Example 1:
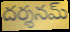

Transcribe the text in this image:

దర్శనమ్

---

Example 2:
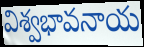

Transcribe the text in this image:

విశ్వభావనాయ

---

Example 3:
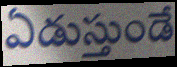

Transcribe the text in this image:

ఏడుస్తుండే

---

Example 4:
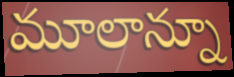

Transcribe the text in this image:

మూలాన్నూ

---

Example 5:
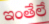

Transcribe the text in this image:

ఇంతేలే